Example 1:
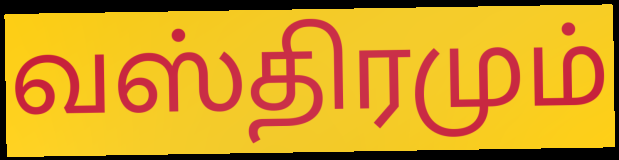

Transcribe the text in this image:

வஸ்திரமும்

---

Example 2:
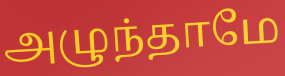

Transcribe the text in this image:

அழுந்தாமே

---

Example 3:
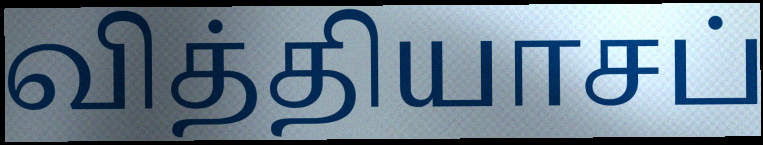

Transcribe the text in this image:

வித்தியாசப்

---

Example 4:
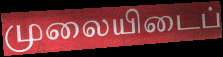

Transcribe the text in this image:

முலையிடைப்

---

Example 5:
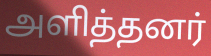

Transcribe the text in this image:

அளித்தனர்